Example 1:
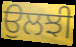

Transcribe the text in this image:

ਉਲਝੀ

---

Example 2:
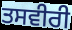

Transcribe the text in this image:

ਤਸਵੀਰੀ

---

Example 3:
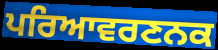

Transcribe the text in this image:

ਪਰਿਆਵਰਣਨਕ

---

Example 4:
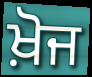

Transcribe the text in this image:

ਖ਼ੋਜ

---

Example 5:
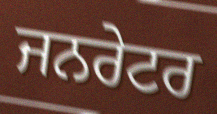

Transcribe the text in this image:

ਜਨਰੇਟਰ